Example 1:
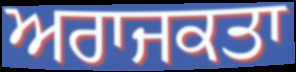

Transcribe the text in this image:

ਅਰਾਜਕਤਾ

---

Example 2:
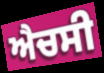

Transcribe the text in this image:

ਐਚਸੀ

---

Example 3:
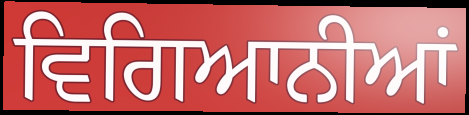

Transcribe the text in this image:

ਵਿਗਿਆਨੀਆਂ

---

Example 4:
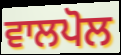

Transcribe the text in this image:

ਵਾਲਪੋਲ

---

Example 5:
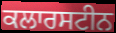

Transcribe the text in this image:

ਕਲਾਰਸਟੀਨ